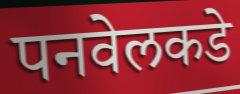
पनवेलकडे